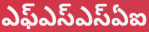
ఎఫ్ఎస్ఎస్ఏఐ